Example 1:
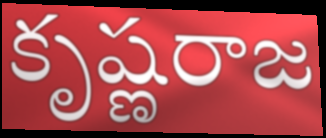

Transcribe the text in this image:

కృష్ణరాజ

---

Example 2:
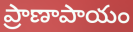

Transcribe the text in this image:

ప్రాణాపాయం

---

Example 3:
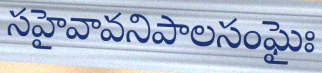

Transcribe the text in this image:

సహైవావనిపాలసంఘైః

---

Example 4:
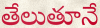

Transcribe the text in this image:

తేలుతూనే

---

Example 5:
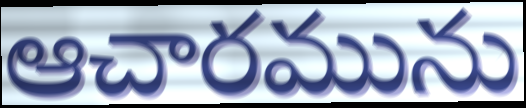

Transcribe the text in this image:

ఆచారమును